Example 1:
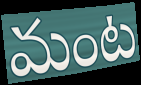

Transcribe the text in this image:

మంట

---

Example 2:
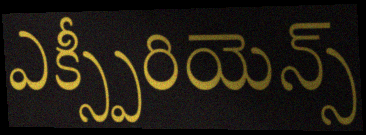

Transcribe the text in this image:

ఎక్స్పీరియెన్స్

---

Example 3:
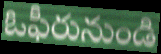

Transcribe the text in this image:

ఓఫీరునుండి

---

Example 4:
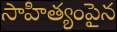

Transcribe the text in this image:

సాహిత్యంపైన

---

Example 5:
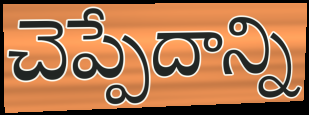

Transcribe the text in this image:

చెప్పేదాన్ని